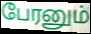
பேரனும்